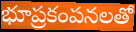
భూప్రకంపనలతో